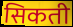
सिकती